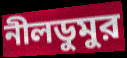
নীলডুমুর